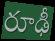
రూఢీ